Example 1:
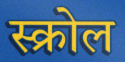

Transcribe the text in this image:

स्क्रोल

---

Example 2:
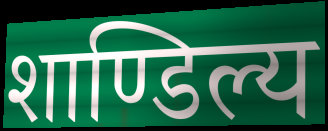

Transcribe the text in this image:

शाण्डिल्य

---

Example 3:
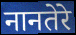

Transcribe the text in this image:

नानतेरे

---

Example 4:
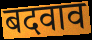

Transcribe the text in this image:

बदवाव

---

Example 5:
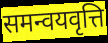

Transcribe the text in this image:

समन्वयवृत्ति